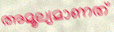
അമൂല്യമാണത്